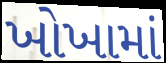
ખોખામાં